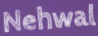
Nehwal